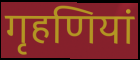
गृहणियां